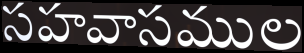
సహవాసముల